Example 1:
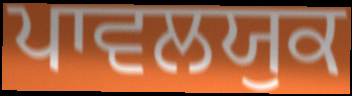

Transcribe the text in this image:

ਪਾਵਲਯੁਕ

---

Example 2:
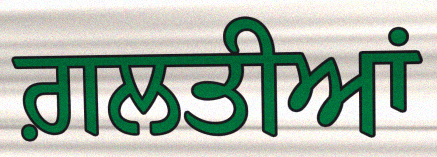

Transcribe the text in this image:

ਗ਼ਲਤੀਆਂ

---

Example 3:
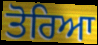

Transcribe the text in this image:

ਤੋਰਿਆ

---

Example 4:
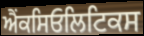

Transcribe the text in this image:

ਐਂਕਸਿਓਲਿਟਿਕਸ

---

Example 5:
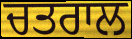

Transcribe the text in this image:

ਚਤਰਾਲ